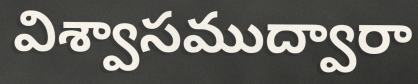
విశ్వాసముద్వారా